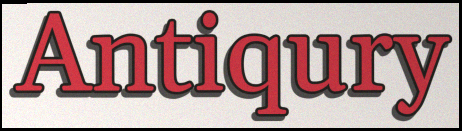
Antiqury